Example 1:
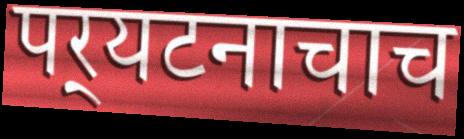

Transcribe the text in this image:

पर्यटनाचाच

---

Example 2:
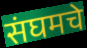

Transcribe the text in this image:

संघमचे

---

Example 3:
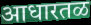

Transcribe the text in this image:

आधारतळ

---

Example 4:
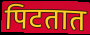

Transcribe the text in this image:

पिटतात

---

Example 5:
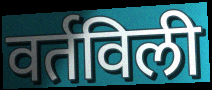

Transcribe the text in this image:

वर्तविली